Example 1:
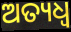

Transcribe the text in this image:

ଅତ୍ୟଧ୍ୱ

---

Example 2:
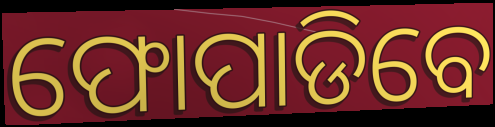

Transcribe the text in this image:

ଫୋପାଡିବେ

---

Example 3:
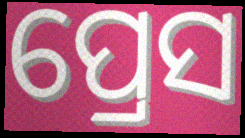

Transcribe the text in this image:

ପ୍ରେସ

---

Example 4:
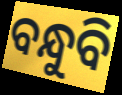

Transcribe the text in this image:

ବନ୍ଧୁବି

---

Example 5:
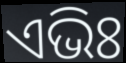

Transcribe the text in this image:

ଏଭିଃ